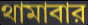
থামাবার